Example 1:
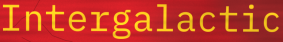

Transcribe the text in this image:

Intergalactic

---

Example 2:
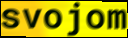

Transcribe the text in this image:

svojom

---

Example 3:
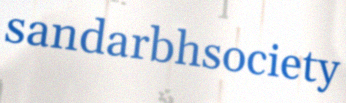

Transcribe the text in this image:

sandarbhsociety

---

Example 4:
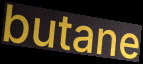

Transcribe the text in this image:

butane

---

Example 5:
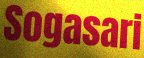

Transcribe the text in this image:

Sogasari